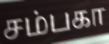
சம்பகா